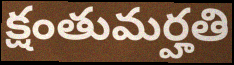
క్షంతుమర్హతి